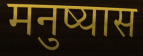
मनुष्यास